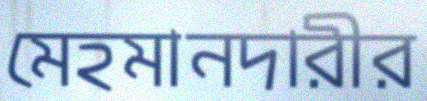
মেহমানদারীর